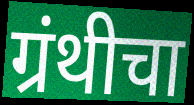
ग्रंथीचा